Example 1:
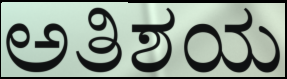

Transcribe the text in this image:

ಅತಿಶಯ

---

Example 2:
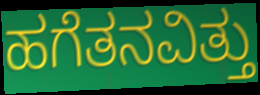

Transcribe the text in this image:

ಹಗೆತನವಿತ್ತು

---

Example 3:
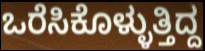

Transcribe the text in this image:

ಒರೆಸಿಕೊಳ್ಳುತ್ತಿದ್ದ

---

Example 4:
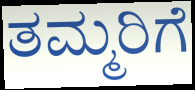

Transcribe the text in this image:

ತಮ್ಮರಿಗೆ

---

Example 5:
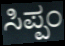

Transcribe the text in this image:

ಸಿಪ್ಪಂ